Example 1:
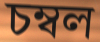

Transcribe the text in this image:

চম্বল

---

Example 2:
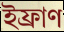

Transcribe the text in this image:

ইফ্ৰাণ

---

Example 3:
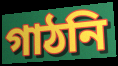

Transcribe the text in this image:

গাঠনি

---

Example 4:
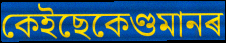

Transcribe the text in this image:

কেইছেকেণ্ডমানৰ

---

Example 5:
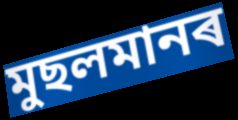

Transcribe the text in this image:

মুছলমানৰ